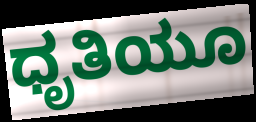
ಧೃತಿಯೂ